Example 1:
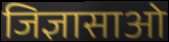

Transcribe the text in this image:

जिज्ञासाओ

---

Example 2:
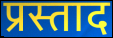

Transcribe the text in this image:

प्रस्ताद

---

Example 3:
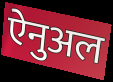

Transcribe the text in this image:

ऐनुअल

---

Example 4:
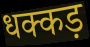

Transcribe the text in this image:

धक्कड़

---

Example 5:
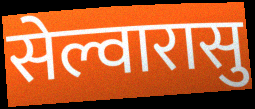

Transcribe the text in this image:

सेल्वारासु